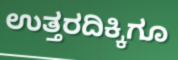
ಉತ್ತರದಿಕ್ಕಿಗೂ